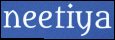
neetiya